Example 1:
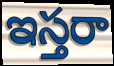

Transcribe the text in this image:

ఇస్తరా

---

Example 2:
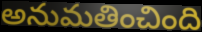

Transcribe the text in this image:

అనుమతించింది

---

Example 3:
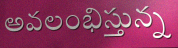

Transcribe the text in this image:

అవలంభిస్తున్న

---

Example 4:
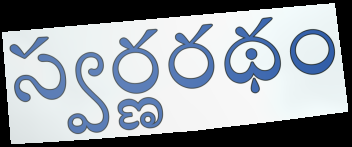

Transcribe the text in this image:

స్వర్ణరథం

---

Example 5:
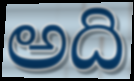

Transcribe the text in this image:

అది